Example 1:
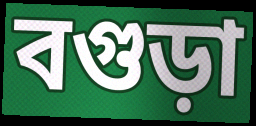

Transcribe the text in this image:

বগুড়া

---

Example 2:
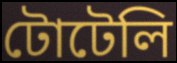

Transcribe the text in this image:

টোটেলি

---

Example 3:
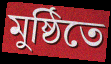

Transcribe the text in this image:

মুষ্ঠিতে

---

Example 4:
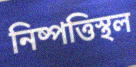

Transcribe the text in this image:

নিষ্পত্তিস্থল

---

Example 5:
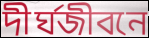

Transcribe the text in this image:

দীর্ঘজীবনে